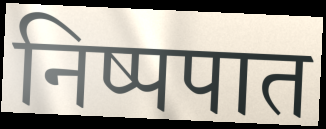
निष्पपात